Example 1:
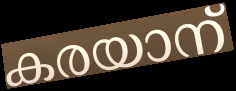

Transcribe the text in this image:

കരയാന്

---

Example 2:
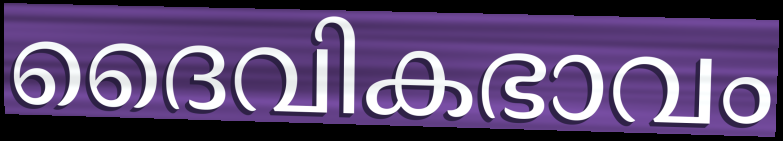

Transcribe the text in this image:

ദൈവികഭാവം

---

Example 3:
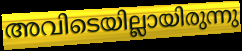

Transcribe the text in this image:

അവിടെയില്ലായിരുന്നു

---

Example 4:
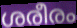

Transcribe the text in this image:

ശരീരം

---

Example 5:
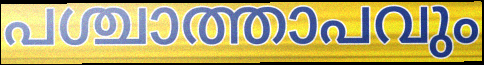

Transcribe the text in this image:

പശ്ചാത്താപവും